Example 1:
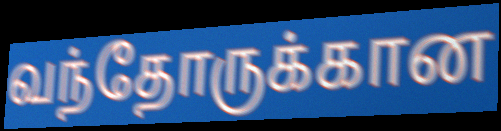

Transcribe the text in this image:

வந்தோருக்கான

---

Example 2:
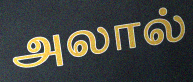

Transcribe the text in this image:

அலால்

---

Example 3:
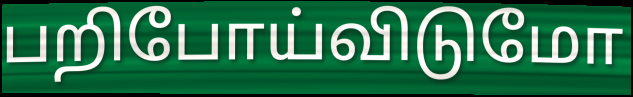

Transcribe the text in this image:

பறிபோய்விடுமோ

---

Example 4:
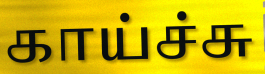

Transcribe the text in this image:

காய்ச்சு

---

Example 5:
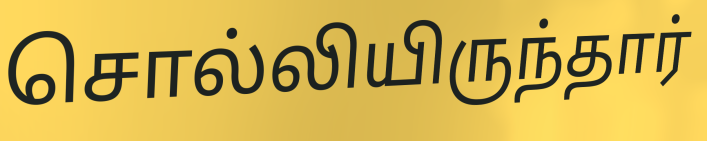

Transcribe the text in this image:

சொல்லியிருந்தார்